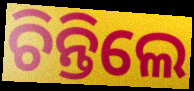
ଚିନ୍ତିଲେ